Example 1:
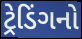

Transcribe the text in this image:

ટ્રેડિંગનો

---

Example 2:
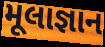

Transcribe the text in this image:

મૂલાજ્ઞાન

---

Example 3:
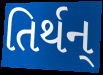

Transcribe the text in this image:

તિર્થન્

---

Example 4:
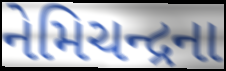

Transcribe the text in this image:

નેમિચન્દ્રના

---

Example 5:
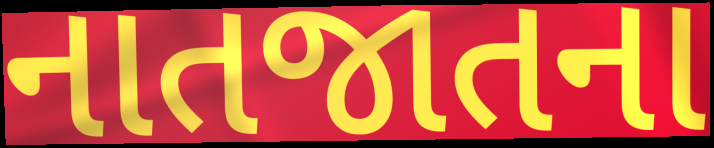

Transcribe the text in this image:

નાતજાતના